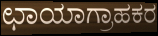
ಛಾಯಾಗ್ರಾಹಕರ